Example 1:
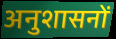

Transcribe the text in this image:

अनुशासनों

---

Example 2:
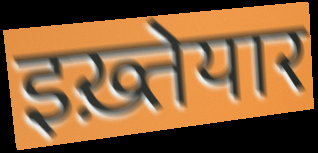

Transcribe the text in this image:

इख़्तेयार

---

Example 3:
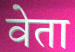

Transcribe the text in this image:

वेता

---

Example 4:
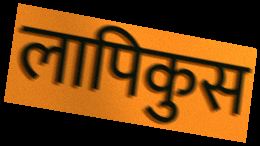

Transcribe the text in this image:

लापिकुस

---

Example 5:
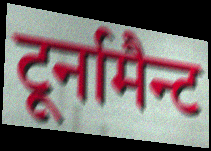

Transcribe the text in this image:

टूर्नामैन्ट